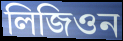
লিজিওন